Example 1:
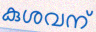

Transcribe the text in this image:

കുശവന്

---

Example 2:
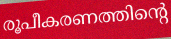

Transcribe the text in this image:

രൂപീകരണത്തിന്റെ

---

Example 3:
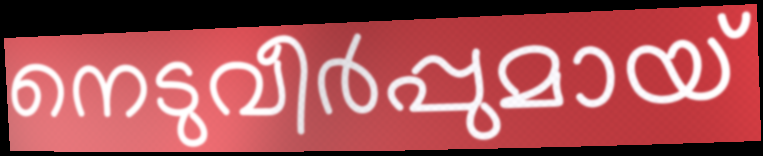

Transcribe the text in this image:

നെടുവീർപ്പുമായ്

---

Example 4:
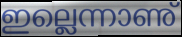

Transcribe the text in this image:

ഇല്ലെന്നാണു്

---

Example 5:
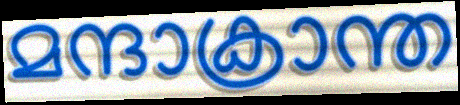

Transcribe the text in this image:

മന്ദാക്രാന്ത